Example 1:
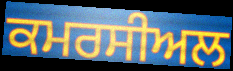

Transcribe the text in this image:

ਕਮਰਸੀਅਲ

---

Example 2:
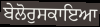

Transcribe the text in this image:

ਬੇਲੋਰੁਸਕਾਇਆ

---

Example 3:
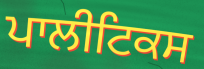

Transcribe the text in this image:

ਪਾਲੀਟਿਕਸ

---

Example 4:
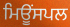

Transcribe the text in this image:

ਮਿਊਂਸਪਲ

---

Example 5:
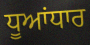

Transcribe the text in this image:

ਧੂਆਂਧਾਰ